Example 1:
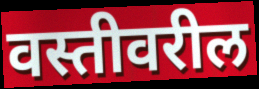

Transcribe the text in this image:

वस्तीवरील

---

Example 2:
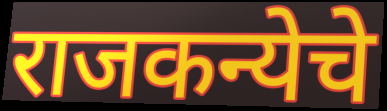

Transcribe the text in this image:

राजकन्येचे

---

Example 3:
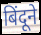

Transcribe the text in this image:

बिंदूने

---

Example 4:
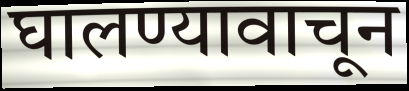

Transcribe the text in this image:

घालण्यावाचून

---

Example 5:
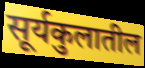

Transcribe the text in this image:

सूर्यकुलातील